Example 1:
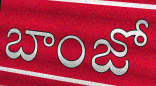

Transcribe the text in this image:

బాంజో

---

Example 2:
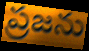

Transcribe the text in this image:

ప్రజను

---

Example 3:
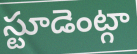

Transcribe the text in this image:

స్టూడెంట్గా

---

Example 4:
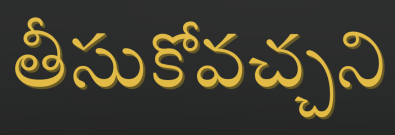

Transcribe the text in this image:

తీసుకోవచ్చని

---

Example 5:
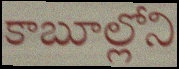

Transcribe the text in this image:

కాబూల్లోని